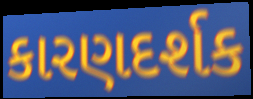
કારણદર્શક